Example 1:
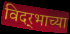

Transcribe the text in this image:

विदर्भाच्या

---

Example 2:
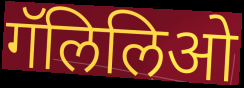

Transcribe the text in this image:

गॅलिलिओ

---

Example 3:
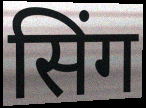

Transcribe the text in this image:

सिंग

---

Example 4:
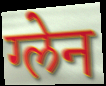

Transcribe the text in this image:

ग्लेन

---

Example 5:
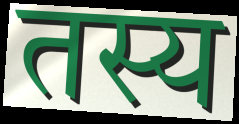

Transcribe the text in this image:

तस्य